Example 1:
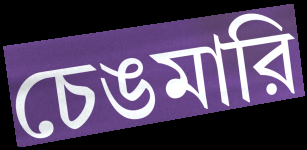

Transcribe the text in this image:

চেঙমারি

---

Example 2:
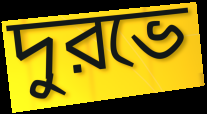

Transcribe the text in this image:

দুরভে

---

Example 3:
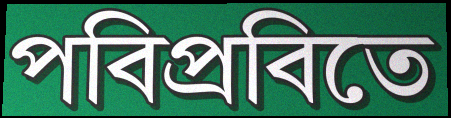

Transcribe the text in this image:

পবিপ্রবিতে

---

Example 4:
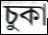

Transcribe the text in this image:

চুকা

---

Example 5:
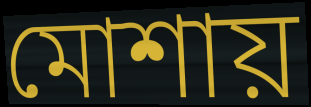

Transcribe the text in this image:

মোশায়